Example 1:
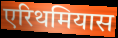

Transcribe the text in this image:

एरिथमियास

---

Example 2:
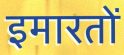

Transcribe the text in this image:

इमारतों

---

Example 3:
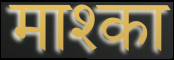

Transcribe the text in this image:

माश्का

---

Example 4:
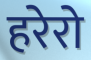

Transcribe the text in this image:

हरेरो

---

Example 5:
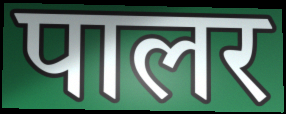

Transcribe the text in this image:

पालर